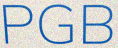
PGB